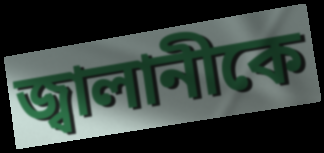
জ্বালানীকে